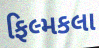
ફિલ્મકલા